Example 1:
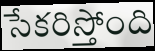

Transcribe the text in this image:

సేకరిస్తోంది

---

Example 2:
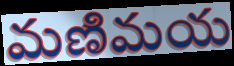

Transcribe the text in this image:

మణిమయ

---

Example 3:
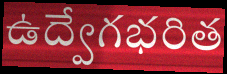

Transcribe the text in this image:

ఉద్వేగభరిత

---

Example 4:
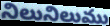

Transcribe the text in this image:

నిలునిలుము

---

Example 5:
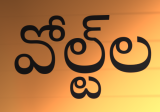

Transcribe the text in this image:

వోల్ట్‌ల